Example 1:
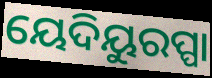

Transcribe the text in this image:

ୟେଦିୟୁରପ୍ପା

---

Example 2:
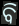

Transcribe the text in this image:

ବି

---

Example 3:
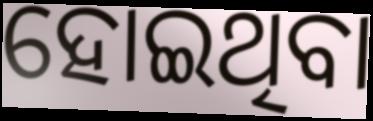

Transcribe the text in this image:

ହୋଇଥିବା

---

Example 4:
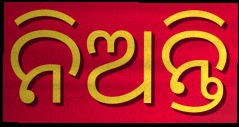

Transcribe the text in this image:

ନିଅନ୍ତି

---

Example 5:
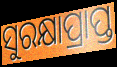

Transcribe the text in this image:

ସୁରକ୍ଷାପ୍ରାପ୍ତ